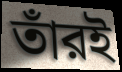
তাঁরই